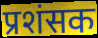
प्रशंसक